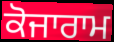
ਕੋਜਾਰਾਮ